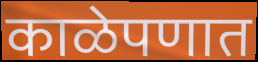
काळेपणात